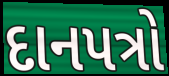
દાનપત્રો